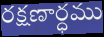
రక్షణార్ధము